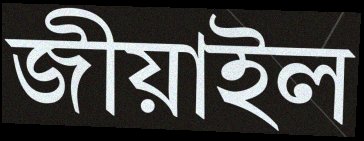
জীয়াইল